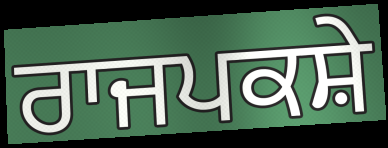
ਰਾਜਪਕਸ਼ੇ